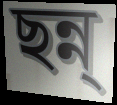
ছন্ন্